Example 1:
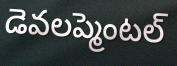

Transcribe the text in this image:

డెవలప్మెంటల్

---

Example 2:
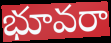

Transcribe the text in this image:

భూవరా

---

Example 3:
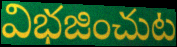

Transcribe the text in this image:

విభజించుట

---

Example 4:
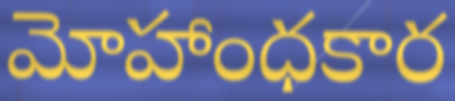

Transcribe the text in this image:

మోహాంధకార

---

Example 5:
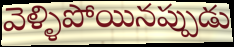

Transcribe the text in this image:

వెళ్ళిపోయినప్పుడు